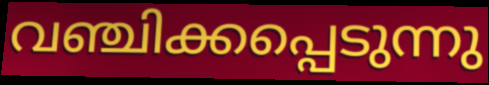
വഞ്ചിക്കപ്പെടുന്നു